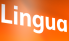
Lingua